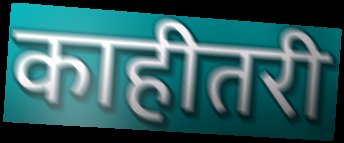
काहीतरी